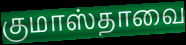
குமாஸ்தாவை